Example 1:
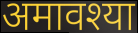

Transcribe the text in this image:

अमावश्या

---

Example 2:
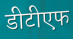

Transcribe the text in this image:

डीटीएफ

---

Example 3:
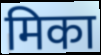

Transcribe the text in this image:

मिका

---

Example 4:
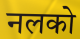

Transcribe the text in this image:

नलको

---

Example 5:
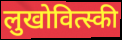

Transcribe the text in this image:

लुखोवित्स्की